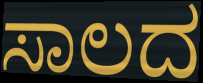
ಸಾಲದ